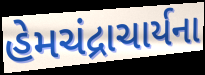
હેમચંદ્રાચાર્યના